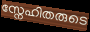
സ്നേഹിതരുടെ